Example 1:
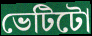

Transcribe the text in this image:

ভেটিটো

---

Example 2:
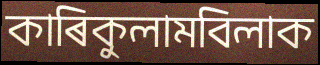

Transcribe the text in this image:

কাৰিকুলামবিলাক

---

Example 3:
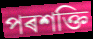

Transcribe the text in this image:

পৰশক্তি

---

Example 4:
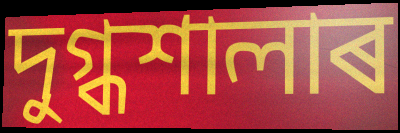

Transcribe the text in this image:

দুগ্ধশালাৰ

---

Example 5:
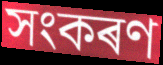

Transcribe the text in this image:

সংকৰণ